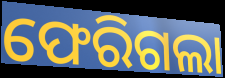
ଫେରିଗଲା